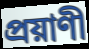
প্রয়াণী